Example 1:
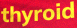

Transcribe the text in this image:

thyroid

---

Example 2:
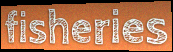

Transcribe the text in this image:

fisheries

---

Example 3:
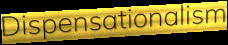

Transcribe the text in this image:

Dispensationalism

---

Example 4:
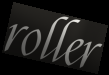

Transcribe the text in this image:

roller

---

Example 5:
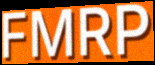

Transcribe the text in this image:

FMRP